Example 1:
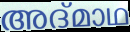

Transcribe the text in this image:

അദ്മാഥ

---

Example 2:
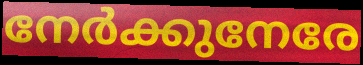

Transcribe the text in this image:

നേർക്കുനേരേ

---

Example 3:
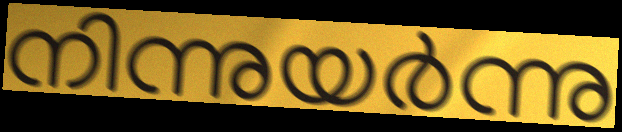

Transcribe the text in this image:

നിന്നുയർന്നു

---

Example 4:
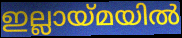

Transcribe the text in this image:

ഇല്ലായ്മയിൽ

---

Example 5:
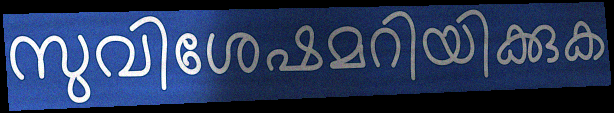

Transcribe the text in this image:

സുവിശേഷമറിയിക്കുക